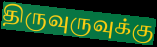
திருவுருவுக்கு